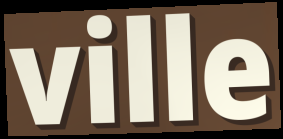
ville